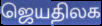
ஜெயதிலக